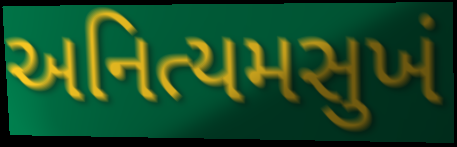
અનિત્યમસુખં